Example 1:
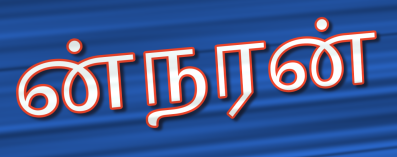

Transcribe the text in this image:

ன்நரன்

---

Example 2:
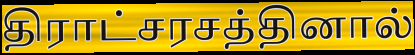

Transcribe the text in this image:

திராட்சரசத்தினால்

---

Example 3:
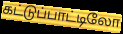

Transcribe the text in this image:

கட்டுப்பாட்டிலோ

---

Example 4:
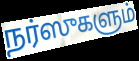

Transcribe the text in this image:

நர்ஸுகளும்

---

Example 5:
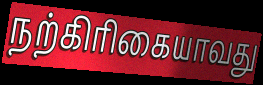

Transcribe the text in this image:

நற்கிரிகையாவது